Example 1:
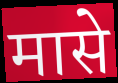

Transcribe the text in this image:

मासे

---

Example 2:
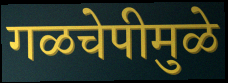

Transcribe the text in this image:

गळचेपीमुळे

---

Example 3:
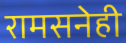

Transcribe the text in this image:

रामसनेही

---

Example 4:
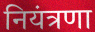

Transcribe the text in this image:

नियंत्रणा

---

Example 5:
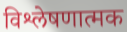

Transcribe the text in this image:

विश्लेषणात्मक